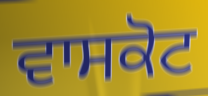
ਵਾਸਕੋਟ